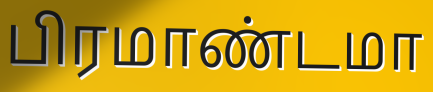
பிரமாண்டமா